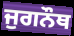
ਜੁਗਨੌਥ